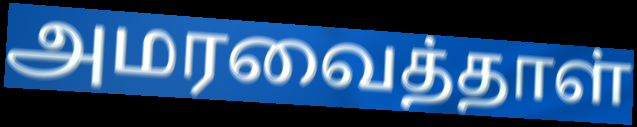
அமரவைத்தாள்